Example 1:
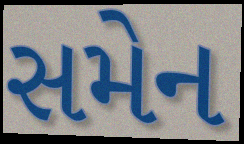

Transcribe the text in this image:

સમેન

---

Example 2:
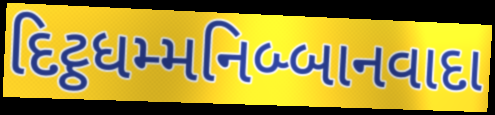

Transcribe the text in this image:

દિટ્ઠધમ્મનિબ્બાનવાદા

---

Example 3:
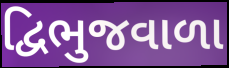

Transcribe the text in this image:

દ્વિભુજવાળા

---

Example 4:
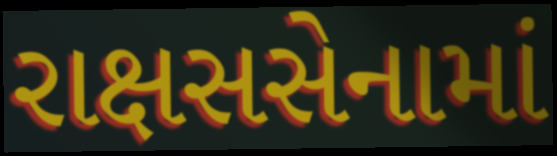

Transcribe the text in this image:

રાક્ષસસેનામાં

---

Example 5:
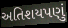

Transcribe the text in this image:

અતિશયપણું